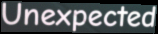
Unexpected